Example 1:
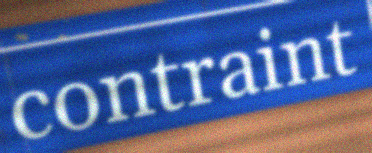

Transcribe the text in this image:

contraint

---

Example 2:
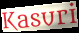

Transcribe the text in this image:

Kasuri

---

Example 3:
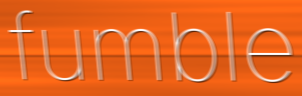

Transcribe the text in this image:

fumble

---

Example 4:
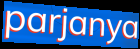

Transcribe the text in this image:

parjanya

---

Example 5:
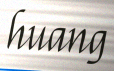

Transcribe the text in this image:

huang